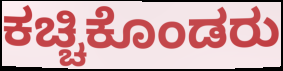
ಕಚ್ಚಿಕೊಂಡರು